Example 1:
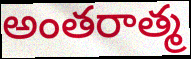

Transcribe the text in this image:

అంతరాత్మ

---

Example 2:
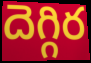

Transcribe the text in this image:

దెగ్గిర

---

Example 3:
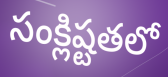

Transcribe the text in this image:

సంక్లిష్టతలో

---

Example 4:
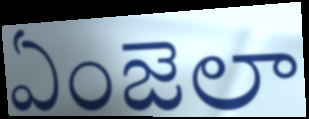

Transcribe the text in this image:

ఏంజెలా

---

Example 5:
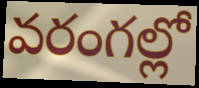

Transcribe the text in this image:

వరంగల్లో